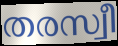
തരസ്വീ